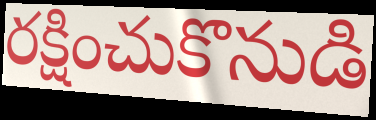
రక్షించుకొనుడి